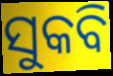
ସୁକବି